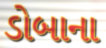
ડોબાના